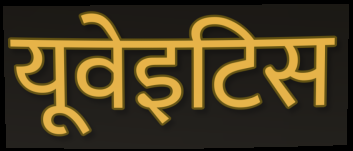
यूवेइटिस